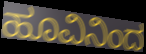
ಹೂವಿನಿಂದ